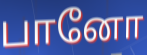
பானோ